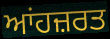
ਆਂਹਜ਼ਰਤ